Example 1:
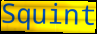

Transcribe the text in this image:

Squint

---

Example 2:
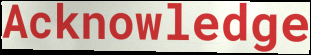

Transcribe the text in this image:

Acknowledge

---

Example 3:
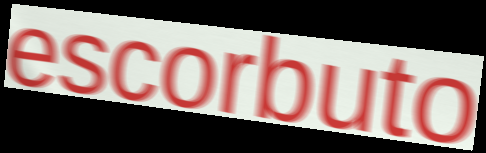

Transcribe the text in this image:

escorbuto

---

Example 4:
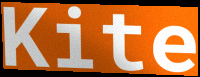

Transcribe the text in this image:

Kite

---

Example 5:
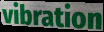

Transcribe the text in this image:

vibration